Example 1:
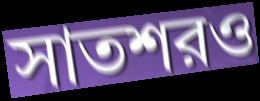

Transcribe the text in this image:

সাতশরও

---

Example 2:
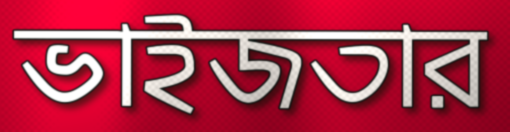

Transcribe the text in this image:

ভাইজতার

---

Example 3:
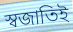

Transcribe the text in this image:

স্বজাতিই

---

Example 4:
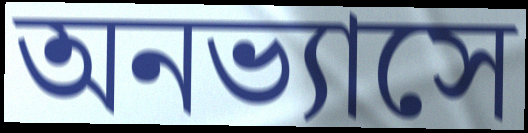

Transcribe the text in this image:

অনভ্যাসে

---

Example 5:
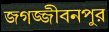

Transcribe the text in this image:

জগজ্জীবনপুর